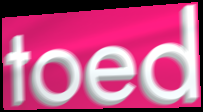
toed